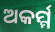
ଅକର୍ମ୍ମ